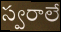
స్వరాలే